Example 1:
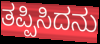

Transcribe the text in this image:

ತಪ್ಪಿಸಿದನು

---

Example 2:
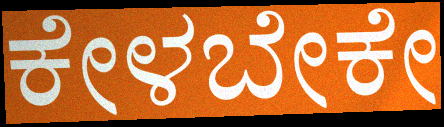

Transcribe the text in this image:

ಕೇಳಬೇಕೇ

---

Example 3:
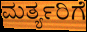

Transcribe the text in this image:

ಮರ್ತ್ಯರಿಗೆ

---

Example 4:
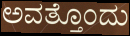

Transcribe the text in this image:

ಅವತ್ತೊಂದು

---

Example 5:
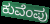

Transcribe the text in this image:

ಕುವೆಂಪು